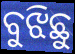
ବୁଝିଛୁ